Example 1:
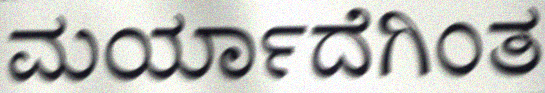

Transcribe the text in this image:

ಮರ್ಯಾದೆಗಿಂತ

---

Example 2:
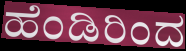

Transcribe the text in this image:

ಹೆಂಡಿರಿಂದ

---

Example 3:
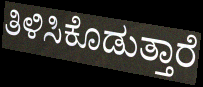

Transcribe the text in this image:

ತಿಳಿಸಿಕೊಡುತ್ತಾರೆ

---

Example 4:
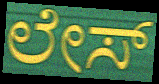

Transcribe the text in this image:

ಲೇಸ್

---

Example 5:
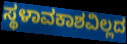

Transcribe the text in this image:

ಸ್ಥಳಾವಕಾಶವಿಲ್ಲದ